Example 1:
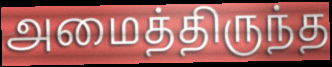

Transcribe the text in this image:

அமைத்திருந்த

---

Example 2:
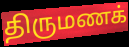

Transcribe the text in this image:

திருமணக்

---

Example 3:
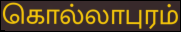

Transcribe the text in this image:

கொல்லாபுரம்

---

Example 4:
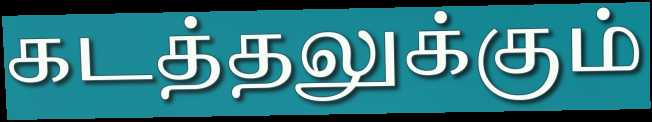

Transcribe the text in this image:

கடத்தலுக்கும்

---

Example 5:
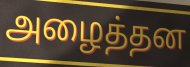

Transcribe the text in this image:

அழைத்தன